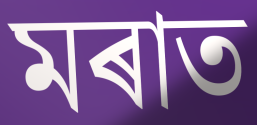
মৰাত